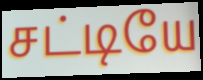
சட்டியே